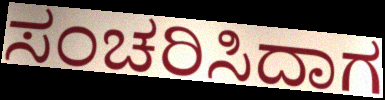
ಸಂಚರಿಸಿದಾಗ